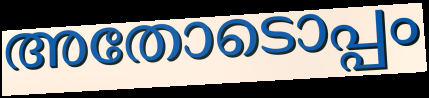
അതോടൊപ്പം